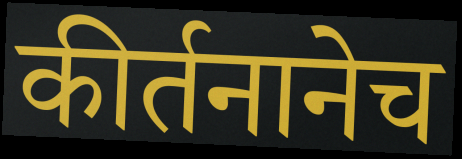
कीर्तनानेच